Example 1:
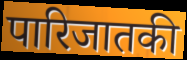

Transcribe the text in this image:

पारिजातकी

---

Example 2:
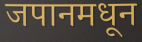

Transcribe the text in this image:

जपानमधून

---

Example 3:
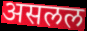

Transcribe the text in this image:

असलल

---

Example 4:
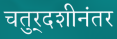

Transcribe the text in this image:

चतुर्दशीनंतर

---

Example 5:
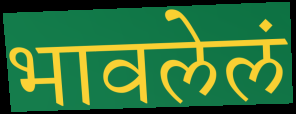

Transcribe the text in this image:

भावलेलं